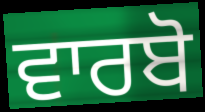
ਵਾਰਬੋ